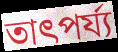
তাৎপৰ্য্য